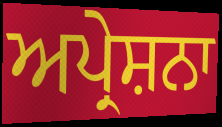
ਅਪ੍ਰੇਸ਼ਨਾ